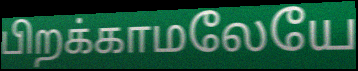
பிறக்காமலேயே